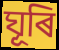
ঘূৰি